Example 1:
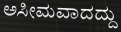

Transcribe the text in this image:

ಅಸೀಮವಾದದ್ದು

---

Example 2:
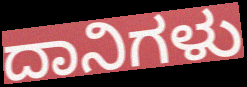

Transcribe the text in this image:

ದಾನಿಗಳು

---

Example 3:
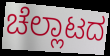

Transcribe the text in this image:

ಚೆಲ್ಲಾಟದ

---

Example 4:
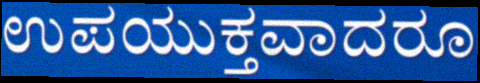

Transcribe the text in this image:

ಉಪಯುಕ್ತವಾದರೂ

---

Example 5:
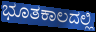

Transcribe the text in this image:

ಭೂತಕಾಲದಲ್ಲಿ